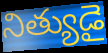
నిత్యుడై